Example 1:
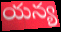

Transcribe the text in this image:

యన్య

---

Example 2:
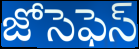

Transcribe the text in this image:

జోసెఫెస్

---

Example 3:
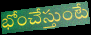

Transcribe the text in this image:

భోంచేస్తుంటే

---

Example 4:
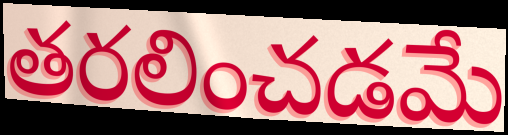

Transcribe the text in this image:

తరలించడమే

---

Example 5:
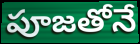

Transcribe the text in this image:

పూజతోనే